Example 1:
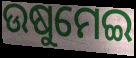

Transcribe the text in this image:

ଉଷୁମେଇ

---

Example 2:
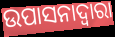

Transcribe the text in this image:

ଉପାସନାଦ୍ଵାରା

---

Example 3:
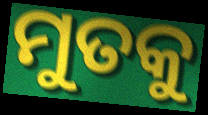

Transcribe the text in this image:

ମୁତକୁ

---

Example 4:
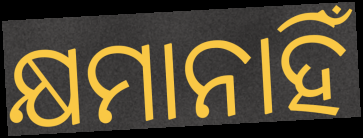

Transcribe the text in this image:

କ୍ଷମାନାହିଁ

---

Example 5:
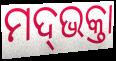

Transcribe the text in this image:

ମଦ୍‌ଭକ୍ତା